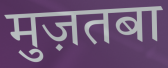
मुज़तबा